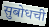
सुबोधची